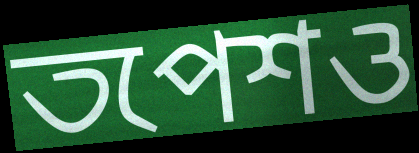
তপেশও